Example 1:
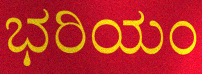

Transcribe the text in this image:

ಭರಿಯಂ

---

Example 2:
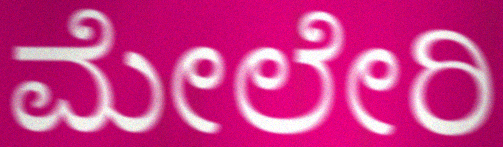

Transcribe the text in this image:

ಮೇಲೇರಿ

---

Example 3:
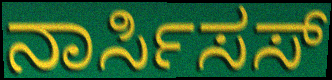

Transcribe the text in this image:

ನಾರ್ಸಿಸಸ್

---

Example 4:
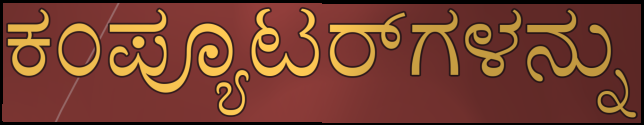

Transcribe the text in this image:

ಕಂಪ್ಯೂಟರ್‌ಗಳನ್ನು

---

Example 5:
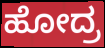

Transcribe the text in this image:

ಹೋದ್ರ